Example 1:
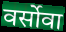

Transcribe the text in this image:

वर्सोवा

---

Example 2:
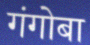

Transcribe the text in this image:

गंगोबा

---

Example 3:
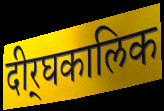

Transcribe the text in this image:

दीर्घकालिक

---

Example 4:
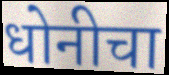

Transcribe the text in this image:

धोनीचा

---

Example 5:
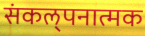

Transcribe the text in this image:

संकल्पनात्मक